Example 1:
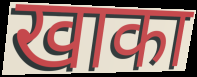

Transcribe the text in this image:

खाका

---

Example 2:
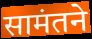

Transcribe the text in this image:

सामंतने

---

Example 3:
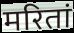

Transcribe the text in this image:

मरितां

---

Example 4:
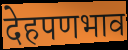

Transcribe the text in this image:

देहपणभाव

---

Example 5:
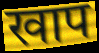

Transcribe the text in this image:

खाप